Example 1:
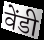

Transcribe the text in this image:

वेंडी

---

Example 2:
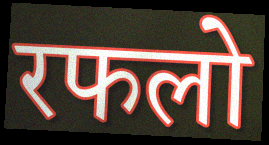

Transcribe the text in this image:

रफलो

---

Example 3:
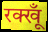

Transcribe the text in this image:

रक्खूँ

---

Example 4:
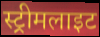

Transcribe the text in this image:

स्ट्रीमलाइट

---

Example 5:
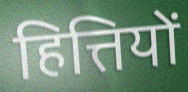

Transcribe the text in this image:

हित्तियों